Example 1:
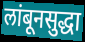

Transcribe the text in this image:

लांबूनसुद्धा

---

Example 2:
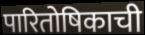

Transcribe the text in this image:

पारितोषिकाची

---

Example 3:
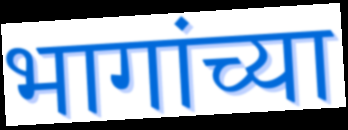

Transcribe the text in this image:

भागांच्या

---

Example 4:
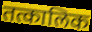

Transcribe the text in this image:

तत्कालिक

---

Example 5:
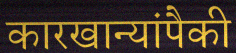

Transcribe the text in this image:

कारखान्यांपैकी